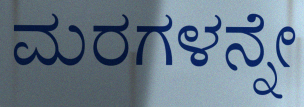
ಮರಗಳನ್ನೇ